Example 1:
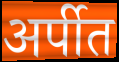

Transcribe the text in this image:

अर्पीत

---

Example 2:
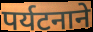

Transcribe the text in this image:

पर्यटनाने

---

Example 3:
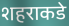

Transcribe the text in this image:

शहराकडे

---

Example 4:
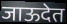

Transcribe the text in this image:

जाऊदेत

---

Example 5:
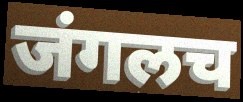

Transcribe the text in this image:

जंगलच